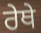
ਰੇਥੇ